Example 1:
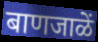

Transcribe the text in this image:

बाणजाळें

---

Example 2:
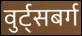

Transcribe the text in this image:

वुर्ट्सबर्ग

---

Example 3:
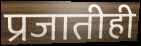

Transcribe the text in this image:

प्रजातीही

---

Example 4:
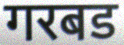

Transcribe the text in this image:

गरबड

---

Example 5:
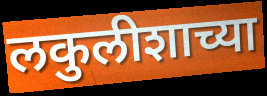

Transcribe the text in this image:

लकुलीशाच्या